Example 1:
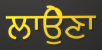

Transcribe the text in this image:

ਲਾਉੇਣਾ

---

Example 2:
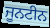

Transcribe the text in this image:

ਜੂਨਟੀਨ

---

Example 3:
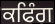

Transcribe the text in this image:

ਕਫਿੰਗ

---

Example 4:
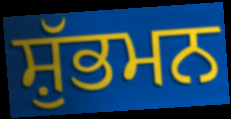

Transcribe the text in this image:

ਸ਼ੁੱਭਮਨ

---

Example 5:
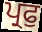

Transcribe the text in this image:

ਪ੍ਰਫੁ